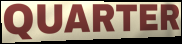
QUARTER